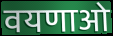
वयणाओ